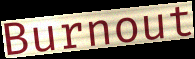
Burnout